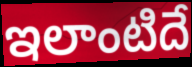
ఇలాంటిదే